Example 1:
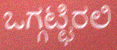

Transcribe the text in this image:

ಒಗ್ಗಟ್ಟಿರಲಿ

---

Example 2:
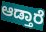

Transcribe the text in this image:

ಆಡ್ತಾರೆ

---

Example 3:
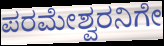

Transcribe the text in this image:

ಪರಮೇಶ್ವರನಿಗೇ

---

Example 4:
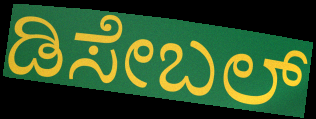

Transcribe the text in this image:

ಡಿಸೇಬಲ್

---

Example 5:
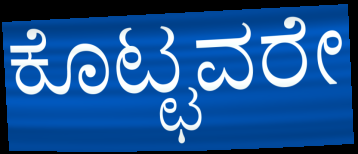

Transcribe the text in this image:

ಕೊಟ್ಟವರೇ